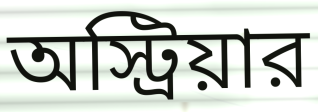
অস্ট্রিয়ার